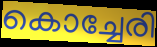
കൊച്ചേരി